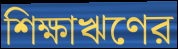
শিক্ষাঋণের